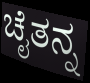
ಚೈತನ್ನ